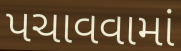
પચાવવામાં